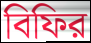
বিফির